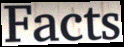
Facts